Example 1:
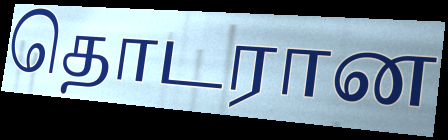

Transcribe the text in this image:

தொடரான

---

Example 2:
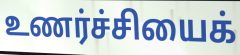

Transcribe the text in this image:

உணர்ச்சியைக்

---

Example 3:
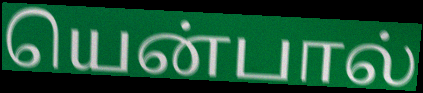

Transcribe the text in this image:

யென்பால்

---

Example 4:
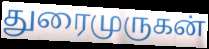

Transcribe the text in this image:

துரைமுருகன்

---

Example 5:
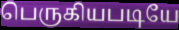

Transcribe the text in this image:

பெருகியபடியே